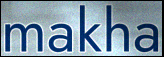
makha